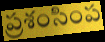
ప్రశంసింప